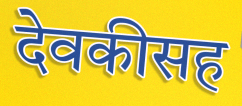
देवकीसह